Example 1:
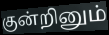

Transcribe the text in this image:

குன்றினும்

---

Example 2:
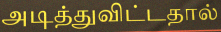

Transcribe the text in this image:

அடித்துவிட்டதால்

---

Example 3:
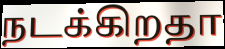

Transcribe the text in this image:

நடக்கிறதா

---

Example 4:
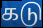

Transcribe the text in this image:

கடு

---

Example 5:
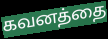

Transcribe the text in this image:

கவனத்தை